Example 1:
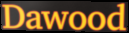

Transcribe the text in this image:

Dawood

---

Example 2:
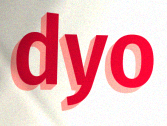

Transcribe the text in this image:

dyo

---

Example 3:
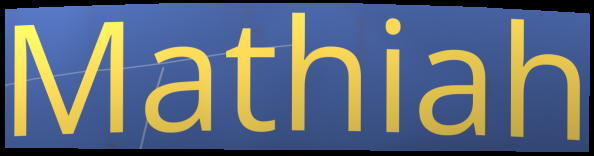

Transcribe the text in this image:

Mathiah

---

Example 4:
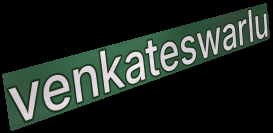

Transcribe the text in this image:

venkateswarlu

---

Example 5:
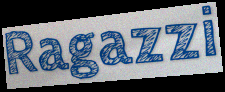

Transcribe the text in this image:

Ragazzi